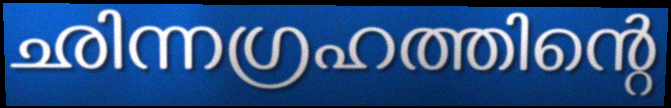
ഛിന്നഗ്രഹത്തിന്റെ